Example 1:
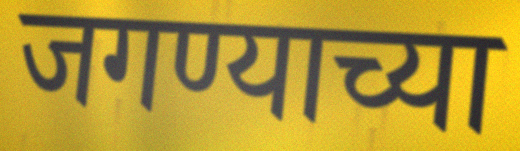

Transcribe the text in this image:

जगण्याच्या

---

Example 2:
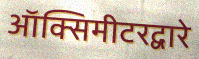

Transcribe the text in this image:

ऑक्सिमीटरद्वारे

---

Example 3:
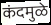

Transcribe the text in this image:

कंदमुळे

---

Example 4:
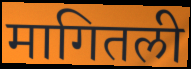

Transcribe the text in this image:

मागितली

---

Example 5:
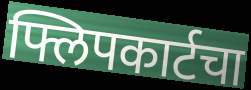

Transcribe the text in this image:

फ्लिपकार्टचा